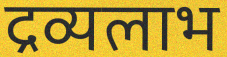
द्रव्यलाभ